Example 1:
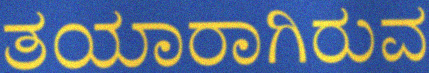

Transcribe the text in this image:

ತಯಾರಾಗಿರುವ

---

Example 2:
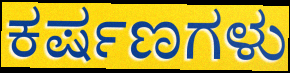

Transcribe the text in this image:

ಕರ್ಷಣಗಳು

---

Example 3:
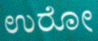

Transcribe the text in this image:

ಉರೋ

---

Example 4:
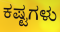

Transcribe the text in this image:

ಕಷ್ಟಗಳು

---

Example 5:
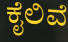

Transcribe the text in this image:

ಕೈಲಿವೆ